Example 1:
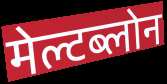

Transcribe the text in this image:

मेल्टब्लोन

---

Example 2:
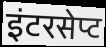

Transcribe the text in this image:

इंटरसेप्ट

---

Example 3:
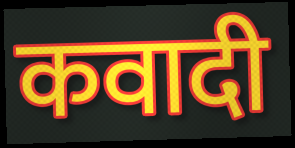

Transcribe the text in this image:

कवादी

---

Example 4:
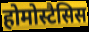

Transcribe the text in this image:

होमोस्टैसिस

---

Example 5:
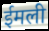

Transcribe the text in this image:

ईमली